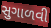
સુગાળવી